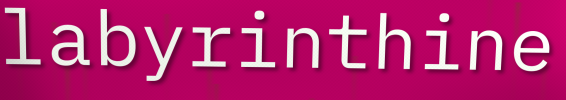
labyrinthine